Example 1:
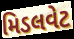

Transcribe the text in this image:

મિડલવેટ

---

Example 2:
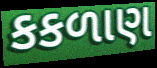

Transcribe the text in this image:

કકળાણ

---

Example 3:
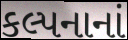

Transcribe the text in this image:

કલ્પનાનાં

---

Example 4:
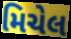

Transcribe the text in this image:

મિચેલ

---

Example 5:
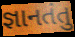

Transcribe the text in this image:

જ્ઞાનતંતુ